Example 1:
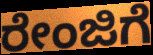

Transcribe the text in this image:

ರೇಂಜಿಗೆ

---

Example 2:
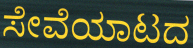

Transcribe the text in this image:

ಸೇವೆಯಾಟದ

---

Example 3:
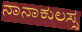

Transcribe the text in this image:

ನಾನಾಕುಲಸ್ಸ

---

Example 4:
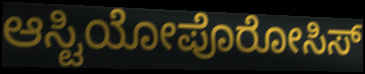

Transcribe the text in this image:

ಆಸ್ಟಿಯೋಪೊರೋಸಿಸ್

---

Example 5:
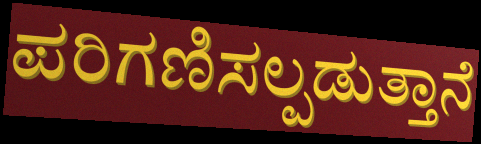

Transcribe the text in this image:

ಪರಿಗಣಿಸಲ್ಪಡುತ್ತಾನೆ